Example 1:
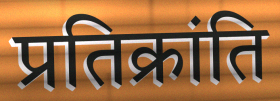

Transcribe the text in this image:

प्रतिक्रांति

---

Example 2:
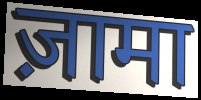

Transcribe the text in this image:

ज़ामा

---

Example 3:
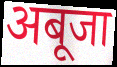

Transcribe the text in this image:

अबूजा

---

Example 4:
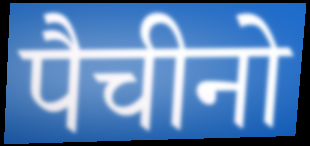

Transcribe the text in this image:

पैचीनो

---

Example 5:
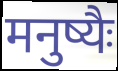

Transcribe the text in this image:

मनुष्यैः